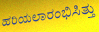
ಹರಿಯಲಾರಂಭಿಸಿತ್ತು